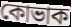
কোভাক